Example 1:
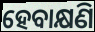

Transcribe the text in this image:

ହେବାକ୍ଷଣି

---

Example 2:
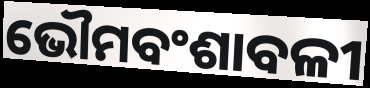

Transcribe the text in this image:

ଭୌମବଂଶାବଳୀ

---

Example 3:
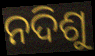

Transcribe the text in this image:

ନଦିଶୁ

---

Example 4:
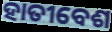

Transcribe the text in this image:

ହାତୀବେଶ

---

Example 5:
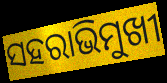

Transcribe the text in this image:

ସହରାଭିମୁଖୀ